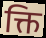
क्ति